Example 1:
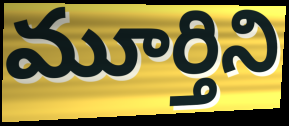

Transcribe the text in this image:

మూర్తిని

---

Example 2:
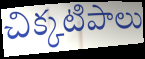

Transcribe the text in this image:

చిక్కటిపాలు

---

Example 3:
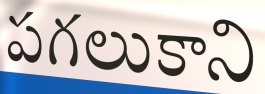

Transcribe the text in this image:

పగలుకాని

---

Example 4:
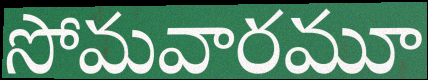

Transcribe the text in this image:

సోమవారమూ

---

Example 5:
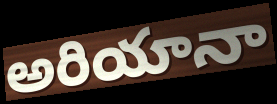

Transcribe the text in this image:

అరియానా